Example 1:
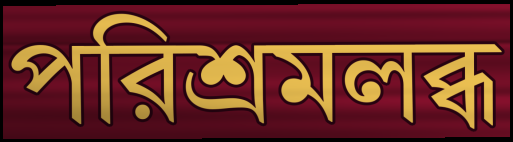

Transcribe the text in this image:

পরিশ্রমলব্ধ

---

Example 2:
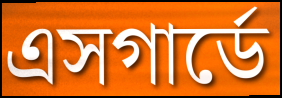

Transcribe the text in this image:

এসগার্ডে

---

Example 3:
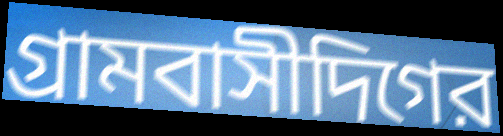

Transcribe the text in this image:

গ্রামবাসীদিগের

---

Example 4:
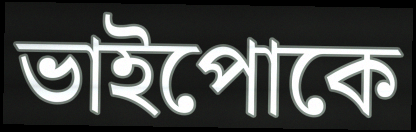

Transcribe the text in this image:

ভাইপোকে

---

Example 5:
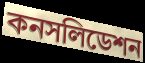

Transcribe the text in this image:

কনসলিডেশন